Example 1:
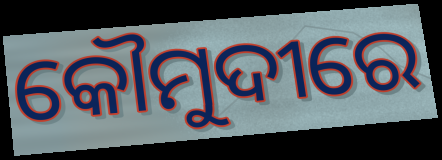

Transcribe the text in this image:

କୌମୁଦୀରେ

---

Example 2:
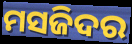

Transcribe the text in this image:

ମସଜିଦର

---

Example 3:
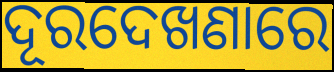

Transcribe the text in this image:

ଦୂରଦେଖଣାରେ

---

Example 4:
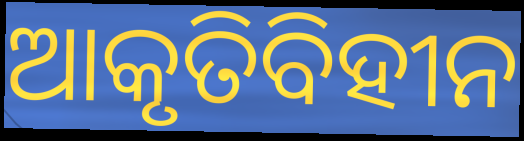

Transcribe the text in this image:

ଆକୃତିବିହୀନ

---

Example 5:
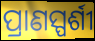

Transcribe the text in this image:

ପ୍ରାଣସ୍ପର୍ଶୀ